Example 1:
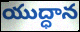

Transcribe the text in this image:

యుద్ధాన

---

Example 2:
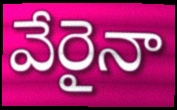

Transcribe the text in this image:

వేరైనా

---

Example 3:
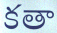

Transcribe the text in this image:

కతా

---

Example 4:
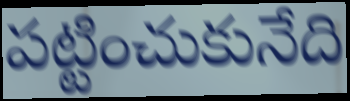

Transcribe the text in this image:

పట్టించుకునేది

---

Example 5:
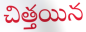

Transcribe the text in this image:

చిత్తయిన